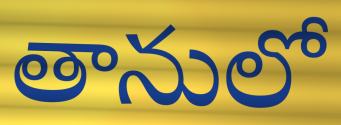
తానులో